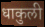
धाकुली